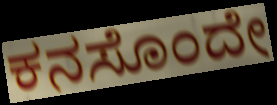
ಕನಸೊಂದೇ